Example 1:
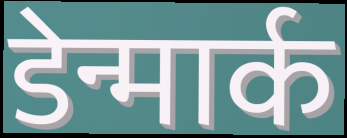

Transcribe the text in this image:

डेन्मार्क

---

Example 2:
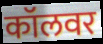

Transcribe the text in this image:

कॉलवर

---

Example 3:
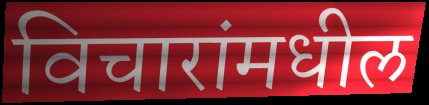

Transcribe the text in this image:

विचारांमधील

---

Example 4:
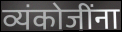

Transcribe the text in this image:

व्यंकोजींना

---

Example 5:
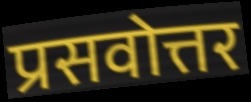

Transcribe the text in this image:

प्रसवोत्तर